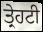
ਤ੍ਰੇਹਟੀ